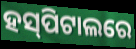
ହସ୍‍ପିଟାଲରେ